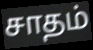
சாதம்